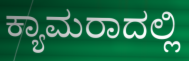
ಕ್ಯಾಮರಾದಲ್ಲಿ